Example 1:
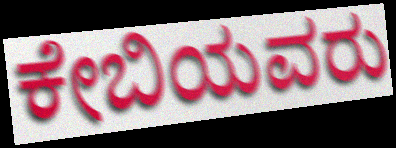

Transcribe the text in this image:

ಕೇಬಿಯವರು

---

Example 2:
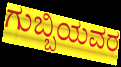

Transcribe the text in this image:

ಗುಬ್ಬಿಯವರ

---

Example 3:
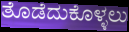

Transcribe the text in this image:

ತೊಡೆದುಕೊಳ್ಳಲು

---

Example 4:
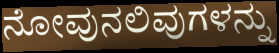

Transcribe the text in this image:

ನೋವುನಲಿವುಗಳನ್ನು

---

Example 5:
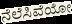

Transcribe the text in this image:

ನೆಲೆಸಿವೆಯೋ